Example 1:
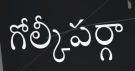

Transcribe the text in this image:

గోల్కీపర్గా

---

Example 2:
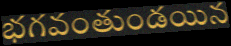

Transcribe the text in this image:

భగవంతుండయిన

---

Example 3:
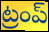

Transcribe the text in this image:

ట్రంప్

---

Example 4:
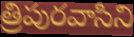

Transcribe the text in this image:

త్రిపురవాసిని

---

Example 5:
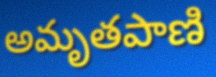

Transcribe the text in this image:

అమృతపాణి